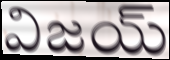
విజయ్